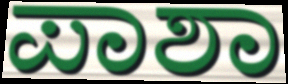
ಪಾಶಾ